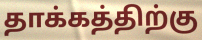
தாக்கத்திற்கு